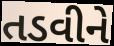
તડવીને